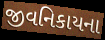
જીવનિકાયના